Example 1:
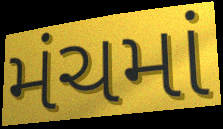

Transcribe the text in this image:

મંચમાં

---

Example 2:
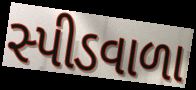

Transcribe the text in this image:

સ્પીડવાળા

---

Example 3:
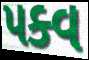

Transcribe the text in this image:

પક્વ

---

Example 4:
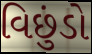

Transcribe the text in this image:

વિછુંડો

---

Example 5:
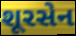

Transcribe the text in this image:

શૂરસેન